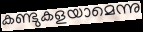
കണ്ടുകളയാമെന്നു